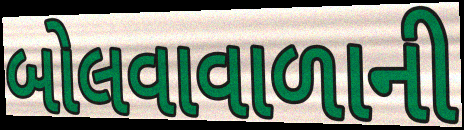
બોલવાવાળાની